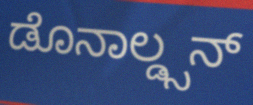
ಡೊನಾಲ್ಡ್ಸನ್